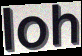
loh